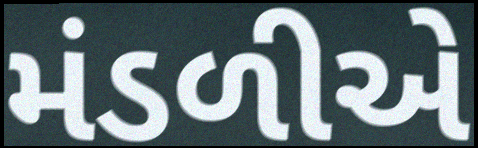
મંડળીએ